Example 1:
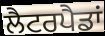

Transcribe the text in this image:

ਲੈਟਰਪੈਡਾਂ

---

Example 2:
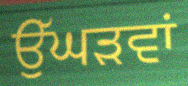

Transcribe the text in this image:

ਉੱਘੜਵਾਂ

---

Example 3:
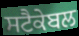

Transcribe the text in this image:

ਸਟੈਕੇਬਲ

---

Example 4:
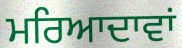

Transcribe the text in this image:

ਮਰਿਆਦਾਵਾਂ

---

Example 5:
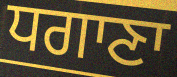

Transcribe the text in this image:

ਧਗਾਣਾ